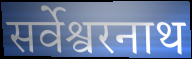
सर्वेश्वरनाथ